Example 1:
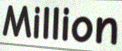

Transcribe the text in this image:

Million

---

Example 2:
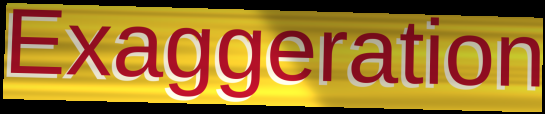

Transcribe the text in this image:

Exaggeration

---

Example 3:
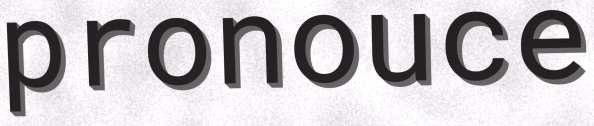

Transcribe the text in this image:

pronouce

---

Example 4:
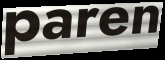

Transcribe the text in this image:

paren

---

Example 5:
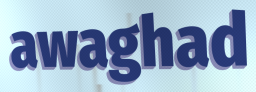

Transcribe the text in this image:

awaghad